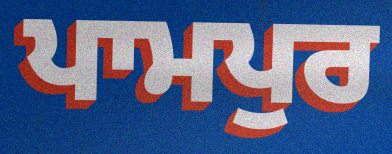
ਪਾਮਪੁਰ